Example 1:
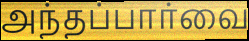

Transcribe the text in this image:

அந்தப்பார்வை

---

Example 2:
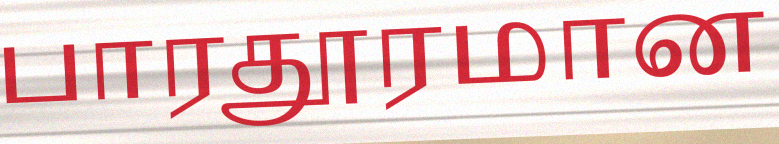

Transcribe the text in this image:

பாரதூரமான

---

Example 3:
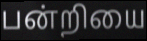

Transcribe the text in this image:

பன்றியை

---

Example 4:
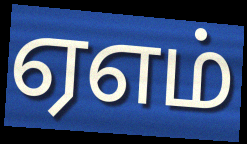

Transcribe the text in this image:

ஏஎம்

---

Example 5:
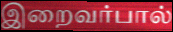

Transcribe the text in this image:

இறைவர்பால்